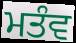
ਮਤੰਵ